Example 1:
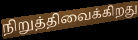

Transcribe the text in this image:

நிறுத்திவைக்கிறது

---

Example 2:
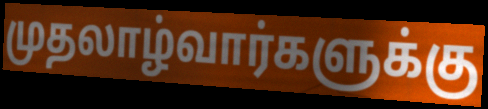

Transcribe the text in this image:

முதலாழ்வார்களுக்கு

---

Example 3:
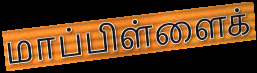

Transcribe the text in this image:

மாப்பிள்ளைக்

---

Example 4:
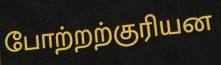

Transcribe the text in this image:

போற்றற்குரியன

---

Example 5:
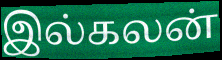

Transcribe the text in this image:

இல்கலன்